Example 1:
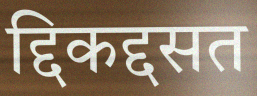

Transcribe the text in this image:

द्दिकद्दसत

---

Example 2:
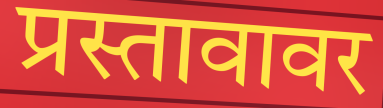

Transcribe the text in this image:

प्रस्तावावर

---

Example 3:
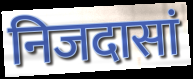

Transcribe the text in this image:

निजदासां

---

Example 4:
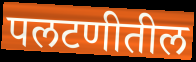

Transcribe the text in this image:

पलटणीतील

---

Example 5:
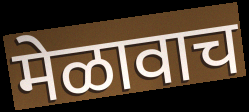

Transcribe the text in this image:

मेळावाच